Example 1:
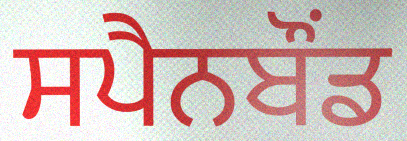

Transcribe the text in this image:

ਸਪੈਨਬੌਂਡ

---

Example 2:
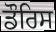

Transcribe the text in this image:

ਡੌਰਿਸ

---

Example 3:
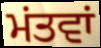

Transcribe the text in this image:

ਮਂਤਵਾਂ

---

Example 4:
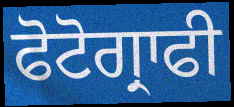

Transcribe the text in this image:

ਫੋਟੋਗ੍ਰਾਫੀ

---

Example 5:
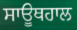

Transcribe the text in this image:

ਸਾਊਥਹਾਲ